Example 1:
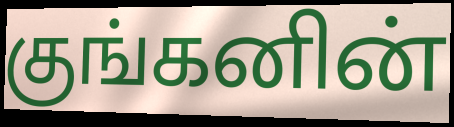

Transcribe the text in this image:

குங்கனின்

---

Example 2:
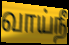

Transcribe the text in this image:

வாய்நீ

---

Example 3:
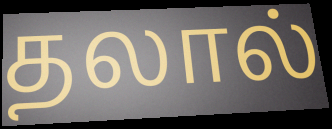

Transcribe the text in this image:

தலால்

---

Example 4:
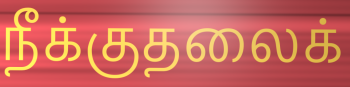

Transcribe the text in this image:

நீக்குதலைக்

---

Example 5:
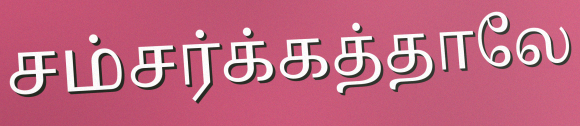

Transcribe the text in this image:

சம்சர்க்கத்தாலே